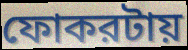
ফোকরটায়